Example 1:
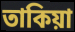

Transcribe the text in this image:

তাকিয়া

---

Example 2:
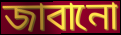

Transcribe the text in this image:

জাবানো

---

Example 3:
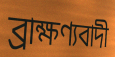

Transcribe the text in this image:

ব্রাক্ষণ্যবাদী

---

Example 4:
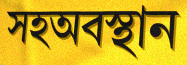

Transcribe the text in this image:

সহঅবস্থান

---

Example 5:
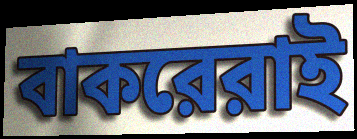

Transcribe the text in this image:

বাকরেরাই